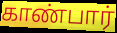
காண்பார்